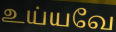
உய்யவே